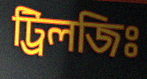
ট্রিলজিঃ